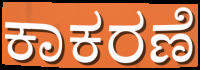
ಕಾಕರಣೆ